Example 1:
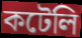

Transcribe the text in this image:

কটেলি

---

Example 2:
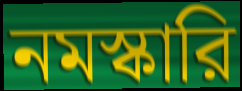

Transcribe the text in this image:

নমস্কারি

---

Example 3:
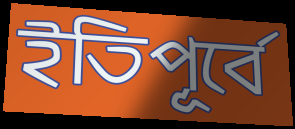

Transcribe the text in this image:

ইতিপূর্বে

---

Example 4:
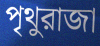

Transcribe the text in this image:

পৃথুরাজা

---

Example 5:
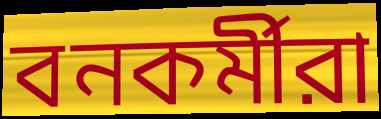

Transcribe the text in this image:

বনকর্মীরা